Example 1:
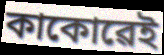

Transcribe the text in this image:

কাকোৱেই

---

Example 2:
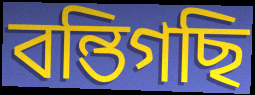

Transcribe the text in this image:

বন্তিগছি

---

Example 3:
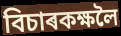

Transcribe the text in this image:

বিচাৰকক্ষলৈ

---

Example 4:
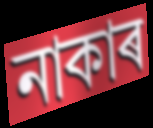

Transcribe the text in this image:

নাকাৰ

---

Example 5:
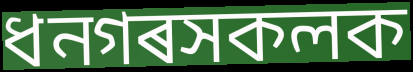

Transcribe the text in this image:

ধনগৰসকলক